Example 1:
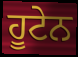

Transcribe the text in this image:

ਹੂਟੇਨ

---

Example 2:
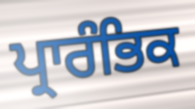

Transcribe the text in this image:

ਪ੍ਰਾਰੰਭਿਕ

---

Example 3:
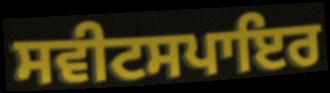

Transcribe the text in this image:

ਸਵੀਟਸਪਾਇਰ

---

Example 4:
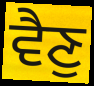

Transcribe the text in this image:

ਵੈਣੁ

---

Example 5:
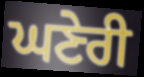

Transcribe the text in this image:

ਘਣੇਰੀ